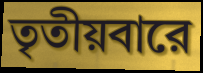
তৃতীয়বারে